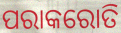
ପରାକରୋତି